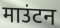
माउंटन